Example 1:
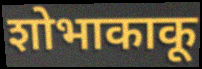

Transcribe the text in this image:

शोभाकाकू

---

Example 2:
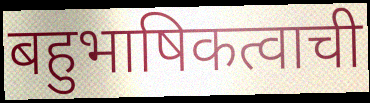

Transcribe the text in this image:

बहुभाषिकत्वाची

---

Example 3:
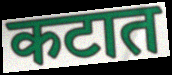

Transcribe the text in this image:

कटात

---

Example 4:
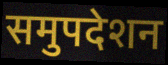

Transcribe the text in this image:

समुपदेशन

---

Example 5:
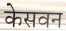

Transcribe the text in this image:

केसवन